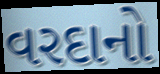
વરદાનો